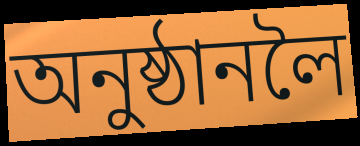
অনুষ্ঠানলৈ